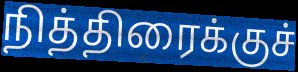
நித்திரைக்குச்